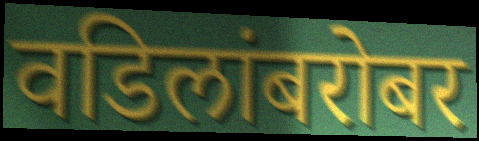
वडिलांबरोबर